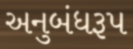
અનુબંધરૂપ